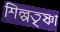
শিল্পতৃষ্ণা